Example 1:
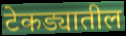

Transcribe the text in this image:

टेकड्यातील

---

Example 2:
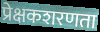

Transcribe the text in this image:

प्रेक्षकशरणता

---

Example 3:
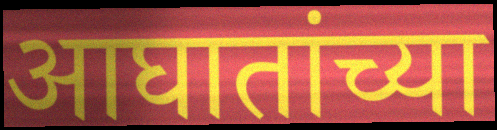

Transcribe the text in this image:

आघातांच्या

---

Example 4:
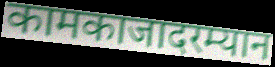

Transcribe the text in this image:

कामकाजादरम्यान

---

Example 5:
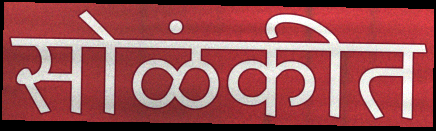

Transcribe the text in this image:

सोळंकीत